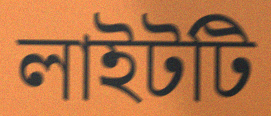
লাইটটি